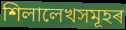
শিলালেখসমূহৰ